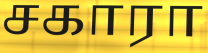
சகாரா